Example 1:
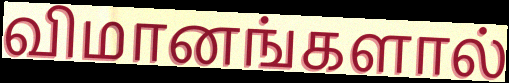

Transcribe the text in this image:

விமானங்களால்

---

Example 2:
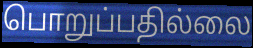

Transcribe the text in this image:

பொறுப்பதில்லை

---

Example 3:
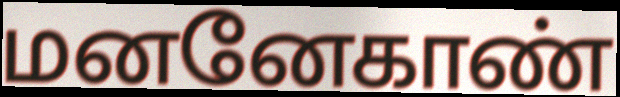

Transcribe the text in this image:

மனனேகாண்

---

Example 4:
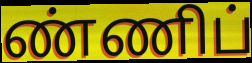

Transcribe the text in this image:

ண்ணிப்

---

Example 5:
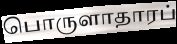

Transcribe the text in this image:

பொருளாதாரப்